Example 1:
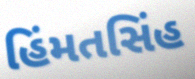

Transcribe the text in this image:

હિંમતસિંહ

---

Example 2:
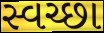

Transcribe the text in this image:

સ્વચ્છા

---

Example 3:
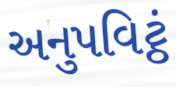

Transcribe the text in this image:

અનુપવિટ્ઠં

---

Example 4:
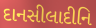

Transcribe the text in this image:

દાનસીલાદીનિ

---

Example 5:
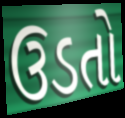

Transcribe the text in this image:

ઉડતો